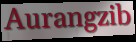
Aurangzib